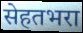
सेहतभरा